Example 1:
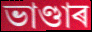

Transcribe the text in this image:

ভাণ্ডাৰ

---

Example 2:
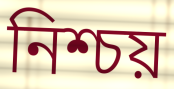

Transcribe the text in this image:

নিশ্চয়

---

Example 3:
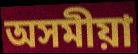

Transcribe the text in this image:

অসমীয়া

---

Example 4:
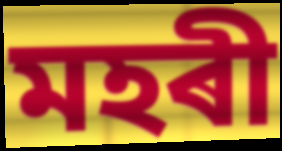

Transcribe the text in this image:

মহৰী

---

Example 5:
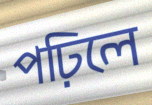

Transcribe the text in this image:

পঢ়িলে